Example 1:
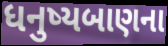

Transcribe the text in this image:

ધનુષ્યબાણના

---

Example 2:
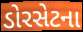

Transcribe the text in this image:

ડોરસેટના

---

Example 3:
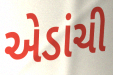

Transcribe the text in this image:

એડાંચી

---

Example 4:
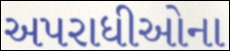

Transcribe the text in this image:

અપરાધીઓના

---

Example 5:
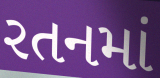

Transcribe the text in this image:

રતનમાં